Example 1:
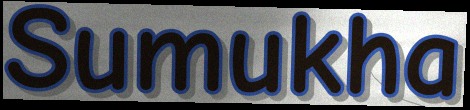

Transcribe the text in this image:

Sumukha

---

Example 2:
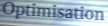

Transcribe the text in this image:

Optimisation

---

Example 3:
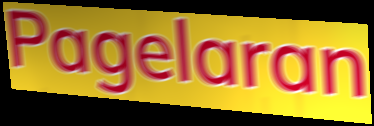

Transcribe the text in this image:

Pagelaran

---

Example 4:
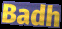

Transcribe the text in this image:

Badh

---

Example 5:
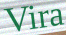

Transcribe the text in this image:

Vira